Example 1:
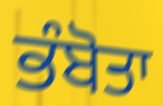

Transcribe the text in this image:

ਭੰਬੋਤਾ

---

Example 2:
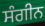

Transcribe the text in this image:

ਸੰਗੀਨ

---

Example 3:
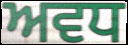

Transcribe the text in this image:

ਅਵਧ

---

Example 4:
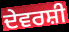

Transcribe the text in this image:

ਦੇਵਰਸ਼ੀ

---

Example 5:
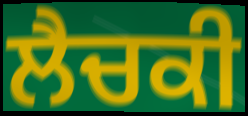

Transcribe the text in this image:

ਲੈਚਕੀ